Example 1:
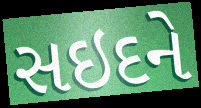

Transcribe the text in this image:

સઇદને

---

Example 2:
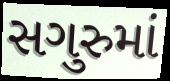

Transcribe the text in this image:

સગુરુમાં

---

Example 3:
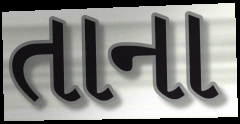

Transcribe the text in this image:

તાના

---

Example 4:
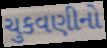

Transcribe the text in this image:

ચુકવણીનો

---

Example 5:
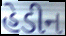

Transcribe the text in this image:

હેડીન